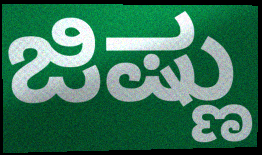
ಜಿಷ್ಣು